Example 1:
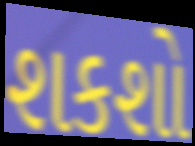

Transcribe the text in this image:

શકશો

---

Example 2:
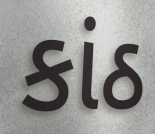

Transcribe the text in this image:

કાંઠ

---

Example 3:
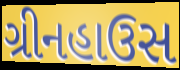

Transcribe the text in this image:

ગ્રીનહાઉસ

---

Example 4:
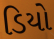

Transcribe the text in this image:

ડિયો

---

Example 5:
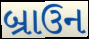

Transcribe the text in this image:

બ્રાઉન